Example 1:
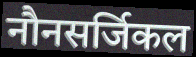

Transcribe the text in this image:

नौनसर्जिकल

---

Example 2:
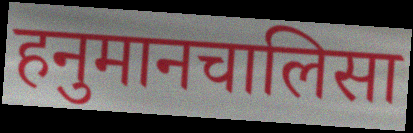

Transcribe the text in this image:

हनुमानचालिसा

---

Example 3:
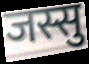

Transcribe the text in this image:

जस्सु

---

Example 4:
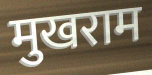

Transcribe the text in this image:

मुखराम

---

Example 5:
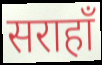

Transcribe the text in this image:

सराहाँ